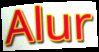
Alur